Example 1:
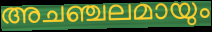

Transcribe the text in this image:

അചഞ്ചലമായും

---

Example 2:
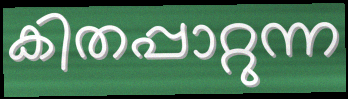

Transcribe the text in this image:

കിതപ്പാറ്റുന്ന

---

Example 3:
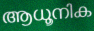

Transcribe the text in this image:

ആധൂനിക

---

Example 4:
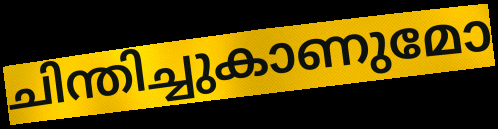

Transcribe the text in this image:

ചിന്തിച്ചുകാണുമോ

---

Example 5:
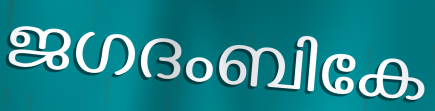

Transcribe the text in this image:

ജഗദംബികേ